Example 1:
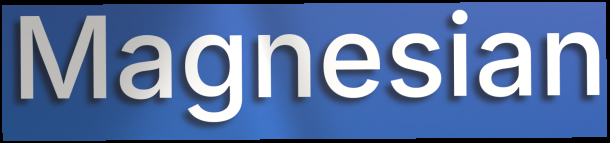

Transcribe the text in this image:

Magnesian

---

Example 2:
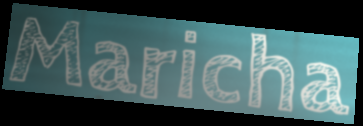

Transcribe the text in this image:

Maricha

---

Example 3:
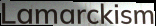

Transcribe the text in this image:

Lamarckism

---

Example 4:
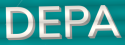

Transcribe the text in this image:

DEPA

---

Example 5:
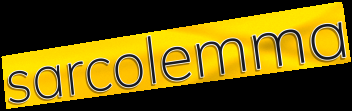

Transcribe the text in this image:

sarcolemma